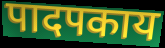
पादपकाय